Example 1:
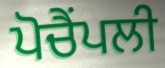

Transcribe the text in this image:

ਪੋਚੈਂਪਲੀ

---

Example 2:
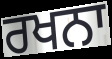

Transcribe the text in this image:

ਰਖਨਾ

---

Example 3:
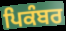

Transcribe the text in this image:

ਪਿਕੰਬਰ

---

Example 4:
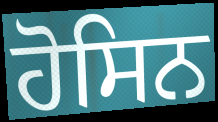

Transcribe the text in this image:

ਹੋਸਿਨ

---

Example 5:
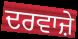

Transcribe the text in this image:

ਦਰਵਾਜ਼ੇ